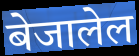
बेजालेल